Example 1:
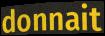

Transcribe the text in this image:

donnait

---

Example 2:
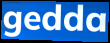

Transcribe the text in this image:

gedda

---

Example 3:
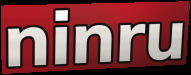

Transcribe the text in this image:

ninru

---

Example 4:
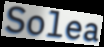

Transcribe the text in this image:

Solea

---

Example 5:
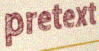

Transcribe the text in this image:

pretext